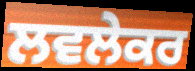
ਲਵਲੇਕਰ